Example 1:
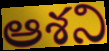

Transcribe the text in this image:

ఆశని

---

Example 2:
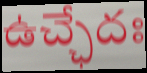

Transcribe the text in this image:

ఉచ్ఛేదః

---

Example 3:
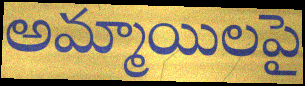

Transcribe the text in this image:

అమ్మాయిలపై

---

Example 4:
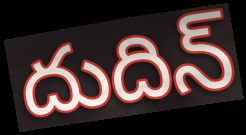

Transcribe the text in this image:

దుదిన్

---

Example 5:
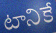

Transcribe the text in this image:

టానికే